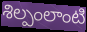
శిల్పంలాంటి